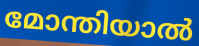
മോന്തിയാൽ